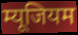
म्यूजियम